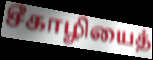
சீகாழியைத்